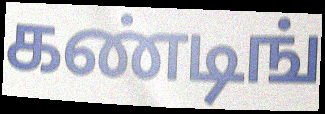
கண்டிங்